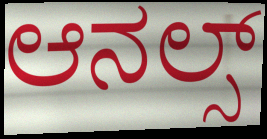
ಆನಲ್ಸ್